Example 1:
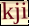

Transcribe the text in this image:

kji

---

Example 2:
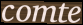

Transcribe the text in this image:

comte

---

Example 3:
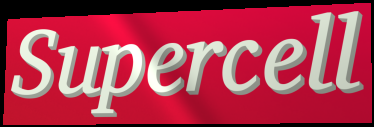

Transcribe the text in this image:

Supercell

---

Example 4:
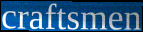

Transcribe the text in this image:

craftsmen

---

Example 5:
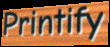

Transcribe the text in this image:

Printify